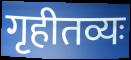
गृहीतव्यः